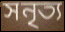
সনৃত্য